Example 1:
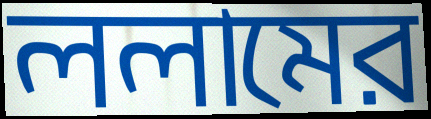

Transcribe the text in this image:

ললামের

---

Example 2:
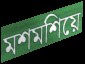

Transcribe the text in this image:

মশমশিয়ে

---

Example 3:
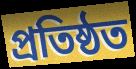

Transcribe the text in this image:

প্রতিষ্ঠত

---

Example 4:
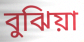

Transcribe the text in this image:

বুঝিয়া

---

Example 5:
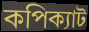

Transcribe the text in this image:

কপিক্যাট